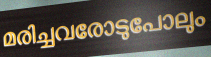
മരിച്ചവരോടുപോലും